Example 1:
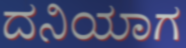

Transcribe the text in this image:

ದನಿಯಾಗ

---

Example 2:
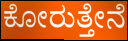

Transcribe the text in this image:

ಕೋರುತ್ತೇನೆ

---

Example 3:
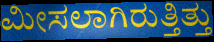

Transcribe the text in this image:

ಮೀಸಲಾಗಿರುತ್ತಿತ್ತು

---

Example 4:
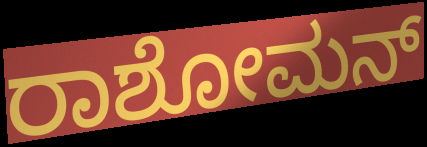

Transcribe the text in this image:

ರಾಶೋಮನ್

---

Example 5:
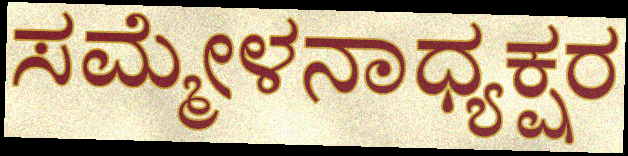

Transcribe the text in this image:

ಸಮ್ಮೇಳನಾಧ್ಯಕ್ಷರ